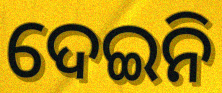
ଦେଇନି